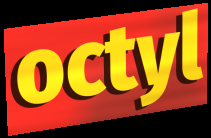
octyl